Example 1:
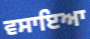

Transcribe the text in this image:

ਵਸਾਇਆ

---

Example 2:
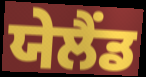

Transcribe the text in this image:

ਯੇਲੈਂਡ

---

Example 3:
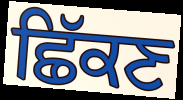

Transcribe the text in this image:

ਛਿੱਕਣ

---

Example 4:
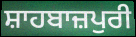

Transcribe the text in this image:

ਸ਼ਾਹਬਾਜ਼ਪੁਰੀ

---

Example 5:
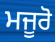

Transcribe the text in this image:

ਮਜੂਰੋ